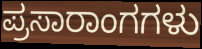
ಪ್ರಸಾರಾಂಗಗಳು